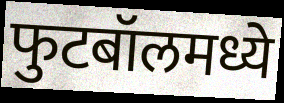
फुटबॉलमध्ये